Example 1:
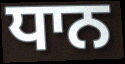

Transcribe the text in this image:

ਧਾਨ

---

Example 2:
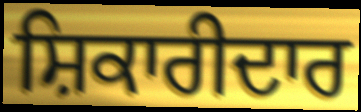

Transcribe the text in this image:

ਸ਼ਿਕਾਰੀਦਾਰ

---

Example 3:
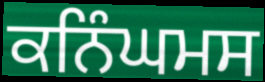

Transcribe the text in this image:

ਕਨਿੰਘਮਸ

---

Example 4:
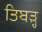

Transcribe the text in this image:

ਤਿਬੜ੍ਹ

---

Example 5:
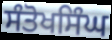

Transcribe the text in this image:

ਸੰਤੋਖਸਿੰਘ